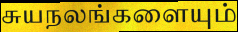
சுயநலங்களையும்